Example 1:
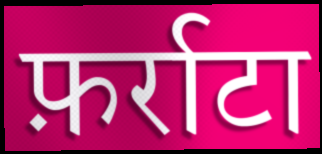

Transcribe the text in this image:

फ़र्राटा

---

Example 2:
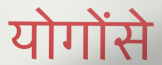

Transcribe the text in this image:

योगोंसे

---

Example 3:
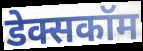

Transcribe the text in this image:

डेक्सकॉम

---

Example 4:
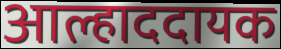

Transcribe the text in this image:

आल्हाददायक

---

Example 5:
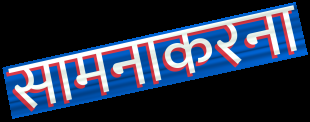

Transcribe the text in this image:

सामनाकरना